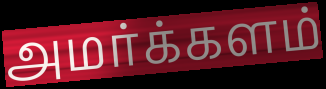
அமர்க்களம்